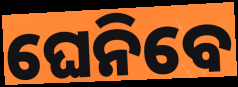
ଘେନିବେ